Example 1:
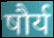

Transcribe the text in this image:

षौर्य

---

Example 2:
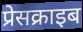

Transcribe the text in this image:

प्रेसक्राइब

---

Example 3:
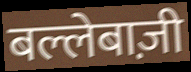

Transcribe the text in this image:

बल्‍लेबाज़ी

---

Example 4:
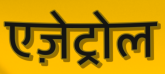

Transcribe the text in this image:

एज़ेट्रोल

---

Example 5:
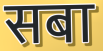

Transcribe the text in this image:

सबा